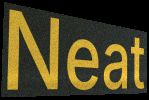
Neat